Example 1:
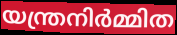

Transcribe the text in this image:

യന്ത്രനിർമ്മിത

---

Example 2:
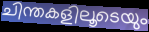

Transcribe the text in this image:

ചിന്തകളിലൂടെയും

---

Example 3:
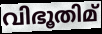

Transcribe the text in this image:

വിഭൂതിമ്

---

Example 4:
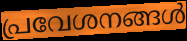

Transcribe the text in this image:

പ്രവേശനങ്ങൾ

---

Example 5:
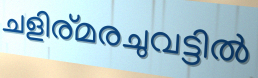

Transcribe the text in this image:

ചളിര്മരചുവട്ടിൽ